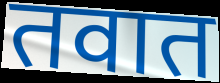
तवात